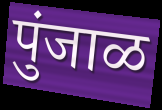
पुंजाळ